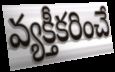
వ్యక్తీకరించే